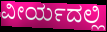
ವೀರ್ಯದಲ್ಲಿ